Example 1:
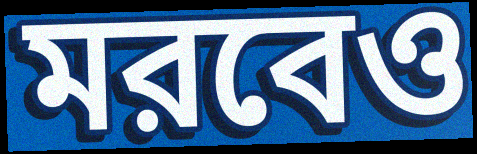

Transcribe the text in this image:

মরবেও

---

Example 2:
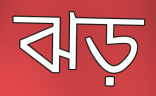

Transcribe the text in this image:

ঝড়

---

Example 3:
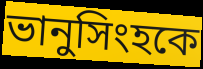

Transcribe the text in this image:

ভানুসিংহকে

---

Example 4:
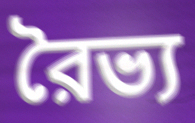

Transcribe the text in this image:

রৈভ্য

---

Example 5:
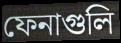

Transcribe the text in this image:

ফেনাগুলি